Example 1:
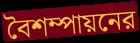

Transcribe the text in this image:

বৈশম্পায়নের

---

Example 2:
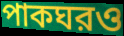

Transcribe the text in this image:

পাকঘরও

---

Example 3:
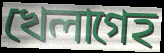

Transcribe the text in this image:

খেলাগেহ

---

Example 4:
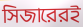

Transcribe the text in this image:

সিজারেরই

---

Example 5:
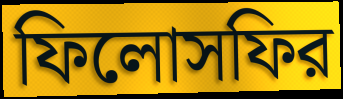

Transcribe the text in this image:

ফিলোসফির